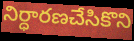
నిర్ధారణచేసికొని